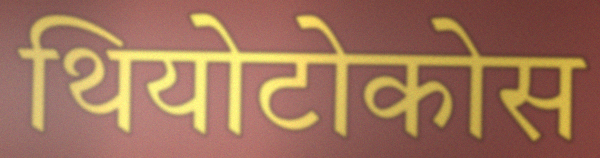
थियोटोकोस